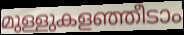
മുള്ളുകളഞ്ഞീടാം